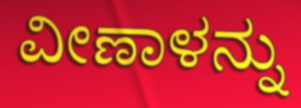
ವೀಣಾಳನ್ನು